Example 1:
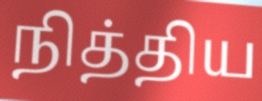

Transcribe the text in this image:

நித்திய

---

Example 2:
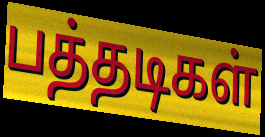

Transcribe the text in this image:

பத்தடிகள்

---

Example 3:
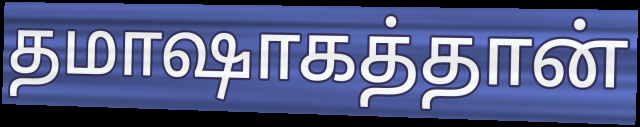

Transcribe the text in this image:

தமாஷாகத்தான்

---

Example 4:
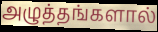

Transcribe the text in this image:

அழுத்தங்களால்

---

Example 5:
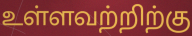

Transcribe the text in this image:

உள்ளவற்றிற்கு